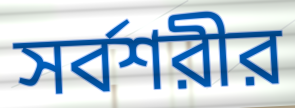
সর্বশরীর